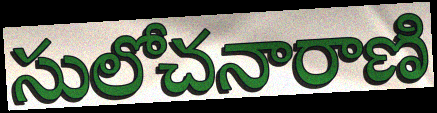
సులోచనారాణి